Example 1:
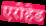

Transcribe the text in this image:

एरोहेड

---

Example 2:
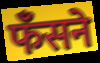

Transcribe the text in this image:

फँसने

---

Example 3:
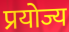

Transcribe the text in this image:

प्रयोज्य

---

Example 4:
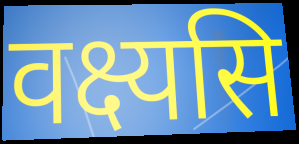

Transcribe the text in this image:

वक्ष्यसि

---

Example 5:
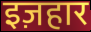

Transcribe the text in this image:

इज़हार